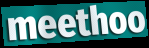
meethoo